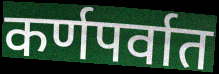
कर्णपर्वात